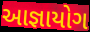
આજ્ઞાયોગ